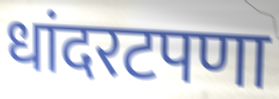
धांदरटपणा